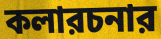
কলারচনার